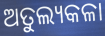
ଅତୁଲ୍ୟକଳା